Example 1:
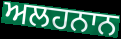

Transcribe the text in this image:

ਅਲਹਨਾਨ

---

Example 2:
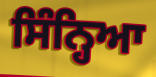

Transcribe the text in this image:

ਸਿੰਨ੍ਹਿਆ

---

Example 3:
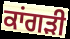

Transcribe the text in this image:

ਕਾਂਗੜੀ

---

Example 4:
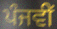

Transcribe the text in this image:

ਪੰਜਵੀਂ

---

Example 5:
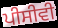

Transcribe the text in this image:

ਪੀਸੀਵੀ